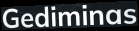
Gediminas